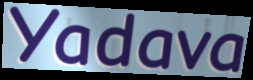
Yadava